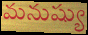
మనుష్యు